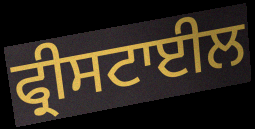
ਫ੍ਰੀਸਟਾਈਲ